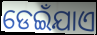
ଡେଇଁଯାଏ